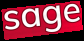
sage